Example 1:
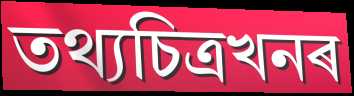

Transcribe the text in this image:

তথ্যচিত্ৰখনৰ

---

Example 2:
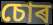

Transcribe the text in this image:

চোৰ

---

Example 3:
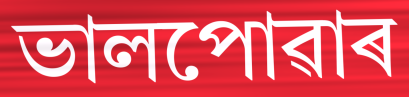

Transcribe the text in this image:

ভালপোৱাৰ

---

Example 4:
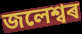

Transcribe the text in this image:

জলেশ্বৰ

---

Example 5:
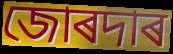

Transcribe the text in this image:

জোৰদাৰ